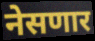
नेसणार